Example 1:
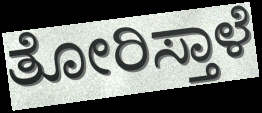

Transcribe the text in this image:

ತೋರಿಸ್ತಾಳೆ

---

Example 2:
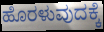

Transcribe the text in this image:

ಹೊರಳುವುದಕ್ಕೆ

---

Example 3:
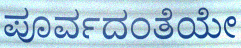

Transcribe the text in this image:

ಪೂರ್ವದಂತೆಯೇ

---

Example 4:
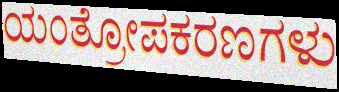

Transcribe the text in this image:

ಯಂತ್ರೋಪಕರಣಗಳು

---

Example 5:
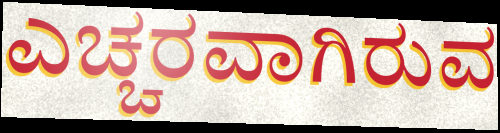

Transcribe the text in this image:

ಎಚ್ಚರವಾಗಿರುವ